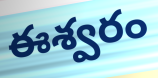
ఈశ్వరం